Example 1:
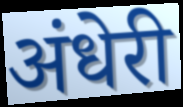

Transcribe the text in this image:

अंधेरी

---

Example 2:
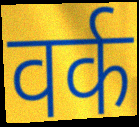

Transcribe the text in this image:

वर्क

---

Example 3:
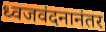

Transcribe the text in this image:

ध्वजवंदनानंतर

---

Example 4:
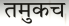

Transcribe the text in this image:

तमुकच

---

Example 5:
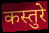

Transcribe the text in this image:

कस्तुरे